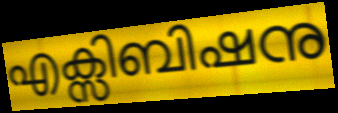
എക്സിബിഷനു